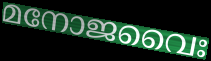
മനോജവൈഃ